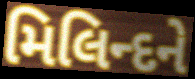
મિલિન્દને